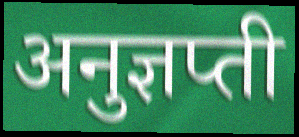
अनुज्ञप्ती